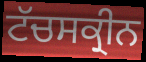
ਟੱਚਸਕ੍ਰੀਨ